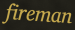
fireman